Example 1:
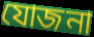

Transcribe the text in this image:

যোজনা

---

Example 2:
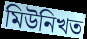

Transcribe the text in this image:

মিউনিখত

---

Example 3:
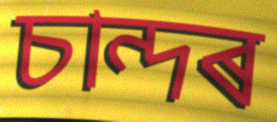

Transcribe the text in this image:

চান্দৰ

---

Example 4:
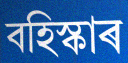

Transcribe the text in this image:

বহিস্কাৰ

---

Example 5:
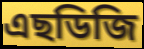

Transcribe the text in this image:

এছডিজি